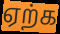
ஏற்க